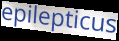
epilepticus